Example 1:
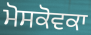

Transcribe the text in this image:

ਮੋਸਕੋਵਕਾ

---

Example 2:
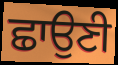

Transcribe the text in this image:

ਛਾਉਣੀ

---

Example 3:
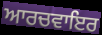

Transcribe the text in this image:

ਆਰਚਵਾਇਰ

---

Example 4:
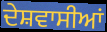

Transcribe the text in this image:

ਦੇਸ਼ਵਾਸੀਆਂ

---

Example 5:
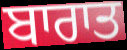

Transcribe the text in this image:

ਬਾਰਾਤ